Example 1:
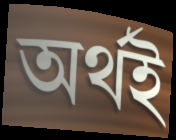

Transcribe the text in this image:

অর্থই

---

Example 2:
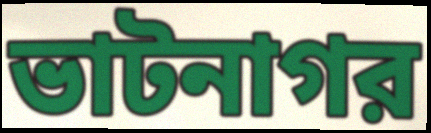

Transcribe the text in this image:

ভাটনাগর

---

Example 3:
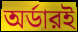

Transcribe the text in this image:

অর্ডারই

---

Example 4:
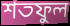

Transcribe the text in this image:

শতফুল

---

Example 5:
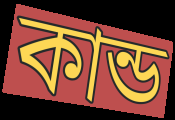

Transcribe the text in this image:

কান্ড